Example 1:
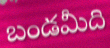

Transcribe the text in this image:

బండమీది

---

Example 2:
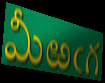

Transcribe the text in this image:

మీఱఁగ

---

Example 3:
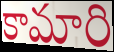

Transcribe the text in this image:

కామారి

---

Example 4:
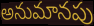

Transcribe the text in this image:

అనుమానపు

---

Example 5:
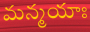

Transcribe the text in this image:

మన్మయాః